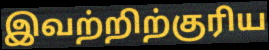
இவற்றிற்குரிய